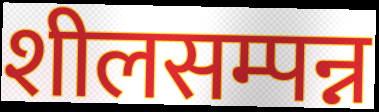
शीलसम्पन्न